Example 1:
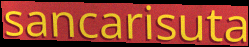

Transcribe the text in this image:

sancarisuta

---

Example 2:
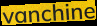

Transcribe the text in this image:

vanchine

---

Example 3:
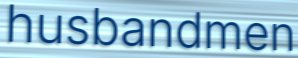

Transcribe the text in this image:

husbandmen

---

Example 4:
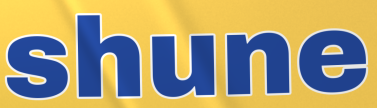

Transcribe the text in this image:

shune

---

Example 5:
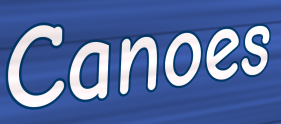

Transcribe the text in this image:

Canoes